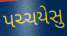
પચ્ચયેસુ